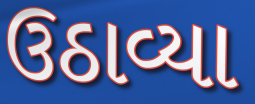
ઉઠાવ્યા